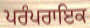
ਪਰੰਪਰਾਇਕ